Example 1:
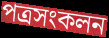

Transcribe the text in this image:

পত্রসংকলন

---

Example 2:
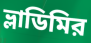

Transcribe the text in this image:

ভ্লাডিমির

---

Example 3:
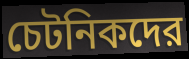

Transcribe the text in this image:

চেটনিকদের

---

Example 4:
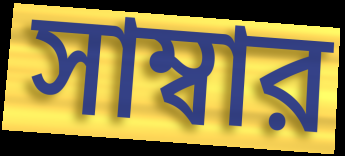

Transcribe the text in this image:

সাম্বার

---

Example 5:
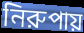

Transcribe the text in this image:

নিরুপায়